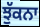
ਝੁੱਕਨਾ